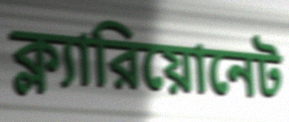
ক্ল্যারিয়োনেট